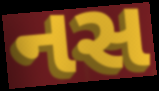
નસ